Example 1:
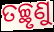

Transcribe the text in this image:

ତଚ୍ଛୃଣୁ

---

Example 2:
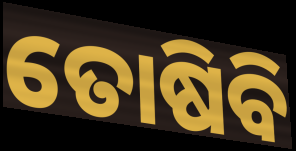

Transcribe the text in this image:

ତୋଷିବି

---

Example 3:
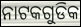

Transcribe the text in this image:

ନାଟକଗୁଡିକ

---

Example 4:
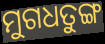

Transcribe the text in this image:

ମୁଗଧତୁଙ୍ଗ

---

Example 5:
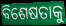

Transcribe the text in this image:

ବିଶେଷତାକୁ